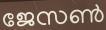
ജേസൺ